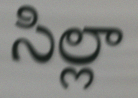
సిల్లా